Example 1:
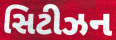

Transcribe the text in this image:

સિટીઝન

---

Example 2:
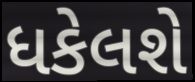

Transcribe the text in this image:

ધકેલશે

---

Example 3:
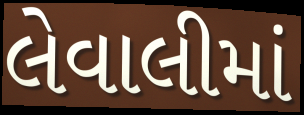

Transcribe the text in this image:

લેવાલીમાં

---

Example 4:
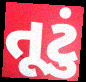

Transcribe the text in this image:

તૂટું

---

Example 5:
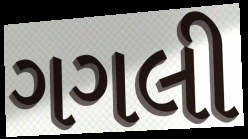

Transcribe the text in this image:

ગગલી